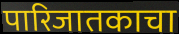
पारिजातकाचा